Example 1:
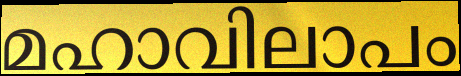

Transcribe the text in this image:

മഹാവിലാപം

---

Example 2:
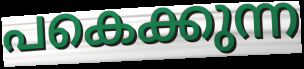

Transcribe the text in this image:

പകെക്കുന്ന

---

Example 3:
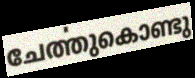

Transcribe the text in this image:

ചേൎത്തുകൊണ്ടു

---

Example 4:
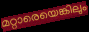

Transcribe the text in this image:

മറ്റാരെയെങ്കിലും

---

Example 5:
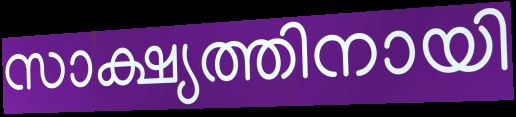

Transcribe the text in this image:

സാക്ഷ്യത്തിനായി